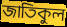
জাতিকুল